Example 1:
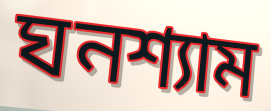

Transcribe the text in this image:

ঘনশ্যাম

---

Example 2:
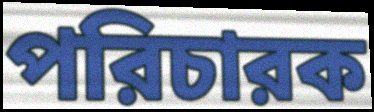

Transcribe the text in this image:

পরিচারক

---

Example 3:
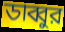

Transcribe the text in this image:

ডাব্বুর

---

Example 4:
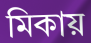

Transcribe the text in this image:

মিকায়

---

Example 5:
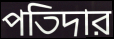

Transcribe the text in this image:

পতিদার